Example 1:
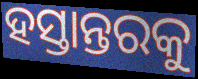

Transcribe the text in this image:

ହସ୍ତାନ୍ତରକୁ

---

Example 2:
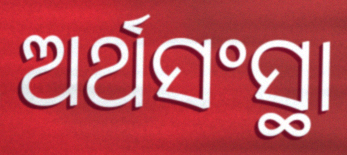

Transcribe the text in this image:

ଅର୍ଥସଂସ୍ଥା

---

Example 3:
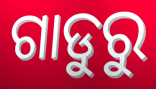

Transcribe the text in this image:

ଗାଡୁରୁ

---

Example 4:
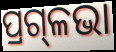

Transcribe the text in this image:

ପ୍ରଗ୍‌ଳଭା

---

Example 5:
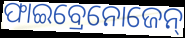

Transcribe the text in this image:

ଫାଇବ୍ରେନୋଜେନ୍